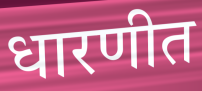
धारणीत